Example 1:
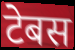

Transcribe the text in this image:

टेबस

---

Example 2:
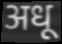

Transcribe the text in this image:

अधू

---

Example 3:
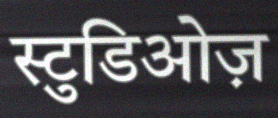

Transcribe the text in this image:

स्टुडिओज़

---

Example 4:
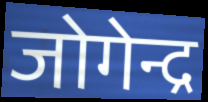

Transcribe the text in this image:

जोगेन्द्र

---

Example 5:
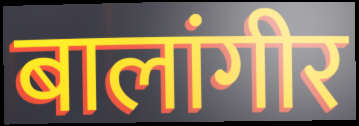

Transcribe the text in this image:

बालांगीर